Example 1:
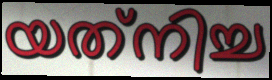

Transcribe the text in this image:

യത്‌നിച്ച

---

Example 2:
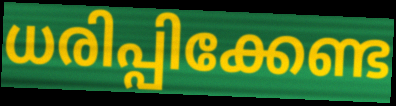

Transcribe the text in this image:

ധരിപ്പിക്കേണ്ട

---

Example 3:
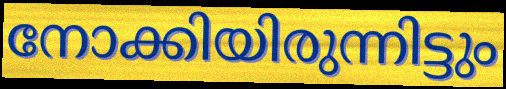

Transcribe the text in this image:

നോക്കിയിരുന്നിട്ടും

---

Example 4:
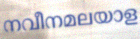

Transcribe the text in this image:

നവീനമലയാള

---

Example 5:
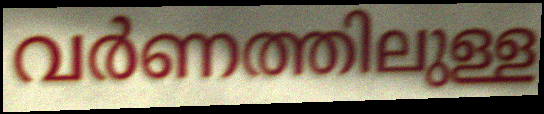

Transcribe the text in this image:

വർണത്തിലുള്ള